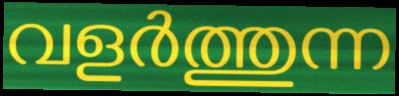
വളർത്തുന്ന